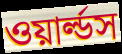
ওয়ার্ল্ডস